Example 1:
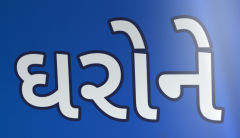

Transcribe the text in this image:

ઘરોને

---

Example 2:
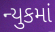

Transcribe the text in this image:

ન્યુકમાં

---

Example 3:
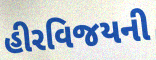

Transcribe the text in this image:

હીરવિજયની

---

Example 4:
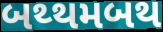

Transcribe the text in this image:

બથ્થમબથ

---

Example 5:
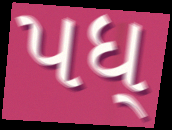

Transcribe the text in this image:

પધ્